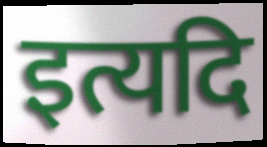
इत्यदि